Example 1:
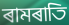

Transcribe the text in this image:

ৰামৰাতি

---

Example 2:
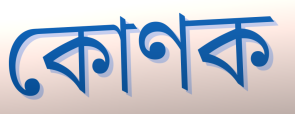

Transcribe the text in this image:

কোণক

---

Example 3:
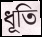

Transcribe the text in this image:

ধূতি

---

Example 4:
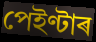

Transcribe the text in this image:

পেইণ্টাৰ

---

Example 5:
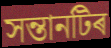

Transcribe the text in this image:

সন্তানটিৰ